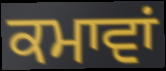
ਕਮਾਵਾਂ